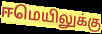
ஈமெயிலுக்கு